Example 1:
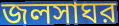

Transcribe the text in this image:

জলসাঘর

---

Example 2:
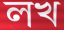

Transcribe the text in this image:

লখ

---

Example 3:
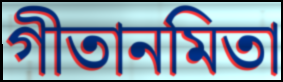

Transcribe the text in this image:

গীতানমিতা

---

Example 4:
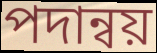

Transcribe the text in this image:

পদান্বয়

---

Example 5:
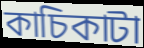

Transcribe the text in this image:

কাচিকাটা